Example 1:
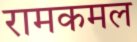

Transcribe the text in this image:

रामकमल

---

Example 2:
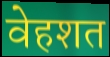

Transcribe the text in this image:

वेहशत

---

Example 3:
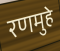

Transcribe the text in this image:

रणमुहे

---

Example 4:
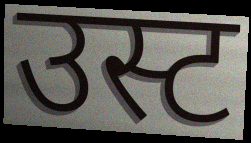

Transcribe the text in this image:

उस्ट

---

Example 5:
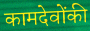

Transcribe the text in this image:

कामदेवोंकी